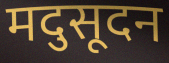
मदुसूदन